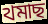
থমাছ